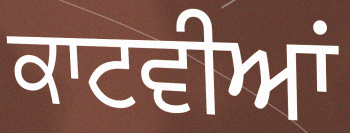
ਕਾਟਵੀਆਂ